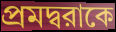
প্রমদ্বরাকে